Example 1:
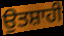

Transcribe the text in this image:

ਉਤਸ਼ਾਹੀ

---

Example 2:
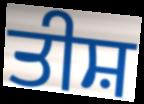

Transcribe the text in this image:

ਤੀਸ਼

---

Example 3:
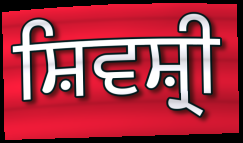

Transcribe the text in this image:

ਸ਼ਿਵਸ਼੍ਰੀ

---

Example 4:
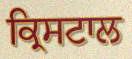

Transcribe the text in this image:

ਕ੍ਰਿਸਟਾਲ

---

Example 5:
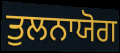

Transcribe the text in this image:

ਤੁਲਨਾਯੋਗ